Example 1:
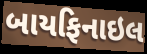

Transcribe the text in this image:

બાયફિનાઇલ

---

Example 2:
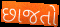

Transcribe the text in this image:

છાજતો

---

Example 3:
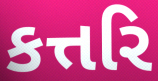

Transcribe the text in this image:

કત્તરિ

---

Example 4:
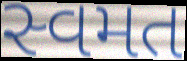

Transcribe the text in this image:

સ્વમત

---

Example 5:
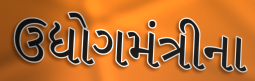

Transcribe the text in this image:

ઉદ્યોગમંત્રીના